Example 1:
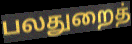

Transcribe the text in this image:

பலதுறைத்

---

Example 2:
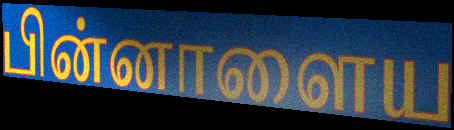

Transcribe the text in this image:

பின்னாளைய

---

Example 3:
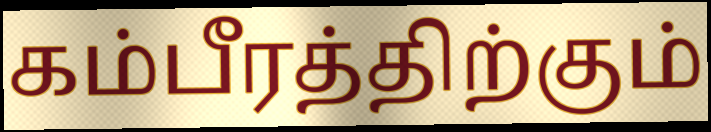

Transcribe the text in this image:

கம்பீரத்திற்கும்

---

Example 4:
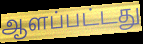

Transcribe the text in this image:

ஆளப்பட்டது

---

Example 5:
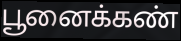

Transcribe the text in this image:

பூனைக்கண்